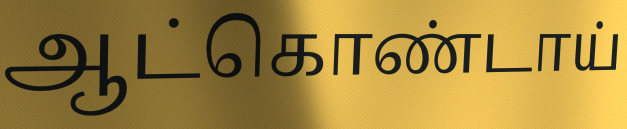
ஆட்கொண்டாய்